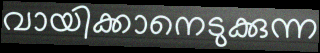
വായിക്കാനെടുക്കുന്ന